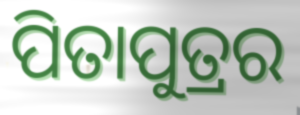
ପିତାପୁତ୍ରର